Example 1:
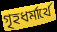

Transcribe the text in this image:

গৃহধর্মার্থে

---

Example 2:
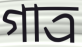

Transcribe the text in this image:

গাত্র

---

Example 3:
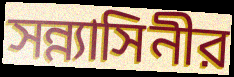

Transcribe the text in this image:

সন্ন্যাসিনীর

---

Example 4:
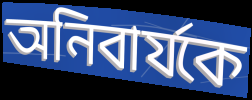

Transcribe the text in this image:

অনিবার্যকে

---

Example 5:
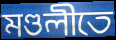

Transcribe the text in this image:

মণ্ডলীতে